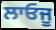
ਲਾਓਜੂ